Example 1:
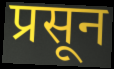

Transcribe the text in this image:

प्रसून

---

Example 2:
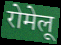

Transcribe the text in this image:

रोमेलू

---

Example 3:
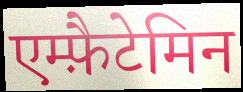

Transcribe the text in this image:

एम्फ़ैटेमिन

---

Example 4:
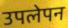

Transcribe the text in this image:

उपलेपन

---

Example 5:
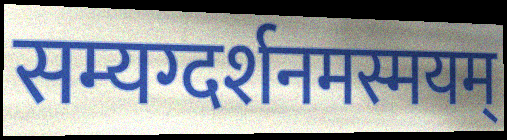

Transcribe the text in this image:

सम्यग्दर्शनमस्मयम्